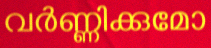
വർണ്ണിക്കുമോ